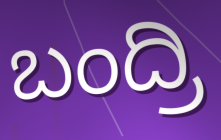
ಬಂದ್ರಿ